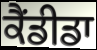
ਕੈਂਡੀਡਾ